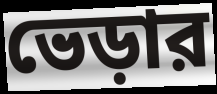
ভেড়ার